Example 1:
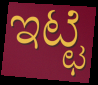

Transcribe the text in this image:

ಇಟ್ಟೆ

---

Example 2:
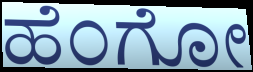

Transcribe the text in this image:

ಹೆಂಗೋ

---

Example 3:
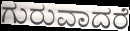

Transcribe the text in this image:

ಗುರುವಾದರೆ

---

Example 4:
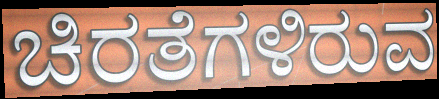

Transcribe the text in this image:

ಚಿರತೆಗಳಿರುವ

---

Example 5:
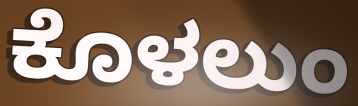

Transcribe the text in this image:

ಕೊಳಲುಂ